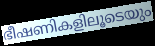
ഭീഷണികളിലൂടെയും